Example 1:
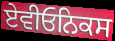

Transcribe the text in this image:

ਏਵੀਓਨਿਕਸ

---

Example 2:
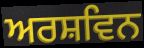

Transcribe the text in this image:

ਅਰਸ਼ਵਿਨ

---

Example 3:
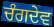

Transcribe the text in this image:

ਚੰਗਦੇਵ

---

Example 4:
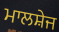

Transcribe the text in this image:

ਮਾਲਸ਼ੇਜ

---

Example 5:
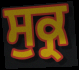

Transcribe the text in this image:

ਸੁਕ੍ਰ